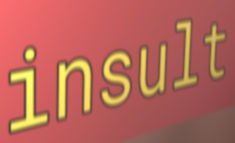
insult